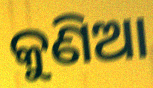
କୁଣିଆ